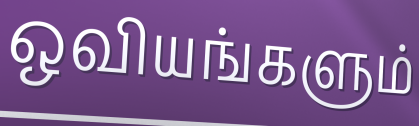
ஒவியங்களும்